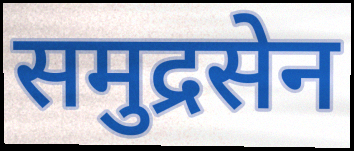
समुद्रसेन